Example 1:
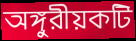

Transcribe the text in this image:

অঙ্গুরীয়কটি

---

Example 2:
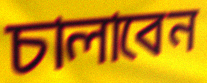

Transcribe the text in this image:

চালাবেন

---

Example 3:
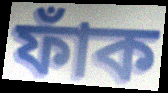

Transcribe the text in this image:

ফাঁক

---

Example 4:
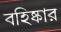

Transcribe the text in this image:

বহিষ্কার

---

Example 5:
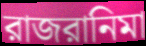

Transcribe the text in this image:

রাজরানিমা